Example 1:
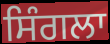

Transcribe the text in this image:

ਸਿੰਗਲਾ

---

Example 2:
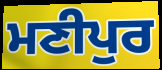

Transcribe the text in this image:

ਮਣੀਪੁਰ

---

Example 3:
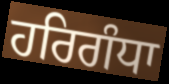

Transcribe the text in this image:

ਹਰਿਗੰਧਾ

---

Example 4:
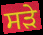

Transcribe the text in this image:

ਸੜੇ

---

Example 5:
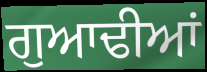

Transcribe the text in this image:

ਗੁਆਢੀਆਂ